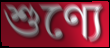
শুণ্যে